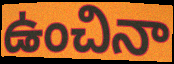
ఉంచినా